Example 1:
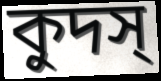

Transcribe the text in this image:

কুদস্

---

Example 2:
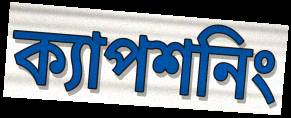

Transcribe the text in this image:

ক্যাপশনিং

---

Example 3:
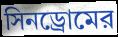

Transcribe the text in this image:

সিনড্রোমের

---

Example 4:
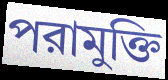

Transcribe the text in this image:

পরামুক্তি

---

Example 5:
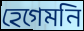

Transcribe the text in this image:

হেগেমনি